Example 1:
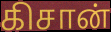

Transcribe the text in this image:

கிசான்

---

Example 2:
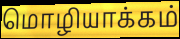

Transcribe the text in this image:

மொழியாக்கம்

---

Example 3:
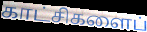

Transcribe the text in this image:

காட்சிகளைப்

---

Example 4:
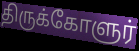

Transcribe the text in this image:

திருக்கோளுர்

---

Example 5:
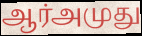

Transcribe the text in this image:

ஆர்அமுது